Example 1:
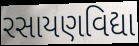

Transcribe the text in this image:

રસાયણવિદ્યા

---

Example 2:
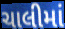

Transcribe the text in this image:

ચાલીમાં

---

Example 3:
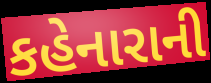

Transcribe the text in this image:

કહેનારાની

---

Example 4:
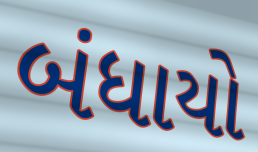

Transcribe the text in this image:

બંધાયો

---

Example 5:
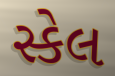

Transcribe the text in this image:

સ્કેલ